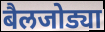
बैलजोड्या